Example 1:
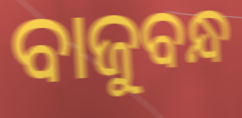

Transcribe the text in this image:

ବାଜୁବନ୍ଧ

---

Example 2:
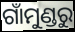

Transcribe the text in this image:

ଗାଁମୁଣ୍ଡରୁ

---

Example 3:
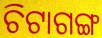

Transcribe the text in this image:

ଚିଟାଗଙ୍ଗ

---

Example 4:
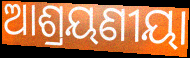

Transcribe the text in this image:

ଆଶ୍ରୟଣୀୟା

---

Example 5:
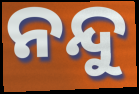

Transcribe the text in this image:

ନନ୍ଦୁ